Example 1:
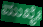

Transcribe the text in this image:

ಮುಖೈಃ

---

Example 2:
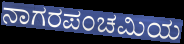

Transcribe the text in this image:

ನಾಗರಪಂಚಮಿಯ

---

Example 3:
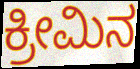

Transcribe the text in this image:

ಕ್ರೀಮಿನ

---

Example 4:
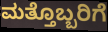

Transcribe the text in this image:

ಮತ್ತೊಬ್ಬರಿಗೆ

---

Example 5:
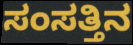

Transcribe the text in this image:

ಸಂಸತ್ತಿನ